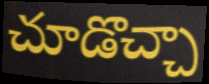
చూడొచ్చా